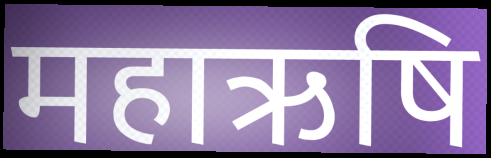
महाऋषि